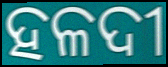
ହଳଦୀ